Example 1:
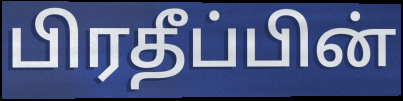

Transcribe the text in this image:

பிரதீப்பின்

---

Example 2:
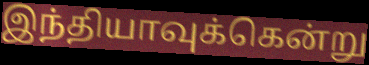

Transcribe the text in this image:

இந்தியாவுக்கென்று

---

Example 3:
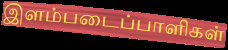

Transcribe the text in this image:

இளம்படைப்பாளிகள்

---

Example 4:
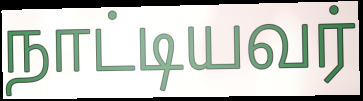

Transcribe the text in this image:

நாட்டியவர்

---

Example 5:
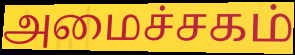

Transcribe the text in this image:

அமைச்சகம்